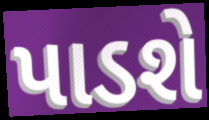
પાડશે